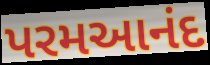
પરમઆનંદ